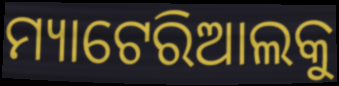
ମ୍ୟାଟେରିଆଲକୁ